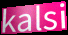
kalsi